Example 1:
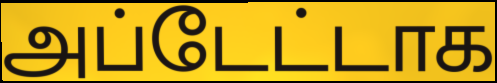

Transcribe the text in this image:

அப்டேட்டாக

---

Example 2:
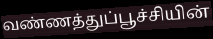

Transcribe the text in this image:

வண்ணத்துப்பூச்சியின்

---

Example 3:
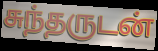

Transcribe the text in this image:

சுந்தருடன்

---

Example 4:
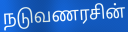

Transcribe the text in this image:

நடுவணரசின்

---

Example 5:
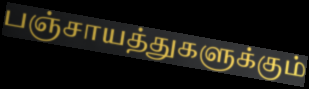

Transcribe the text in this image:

பஞ்சாயத்துகளுக்கும்